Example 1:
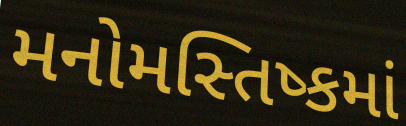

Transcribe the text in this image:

મનોમસ્તિષ્કમાં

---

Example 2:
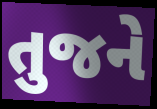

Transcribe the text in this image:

તુજને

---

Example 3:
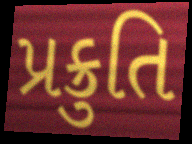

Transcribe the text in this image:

પ્રક્રુતિ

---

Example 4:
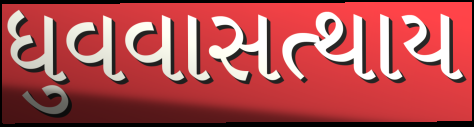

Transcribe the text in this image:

ધુવવાસત્થાય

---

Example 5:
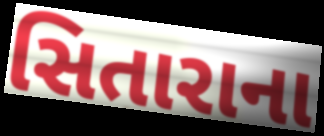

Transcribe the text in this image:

સિતારાના